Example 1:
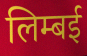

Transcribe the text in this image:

लिम्बई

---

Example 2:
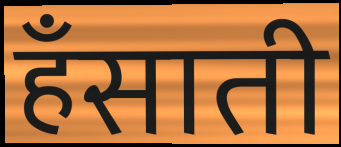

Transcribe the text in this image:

हँसाती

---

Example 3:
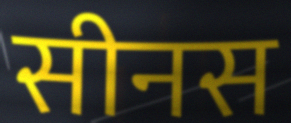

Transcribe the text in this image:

सीनस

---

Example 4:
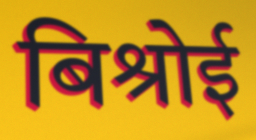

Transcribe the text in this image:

बिश्रोई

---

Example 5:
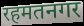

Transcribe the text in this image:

रहमतनगर